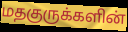
மதகுருக்களின்